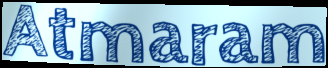
Atmaram